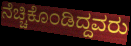
ನೆಚ್ಚಿಕೊಂಡಿದ್ದವರು